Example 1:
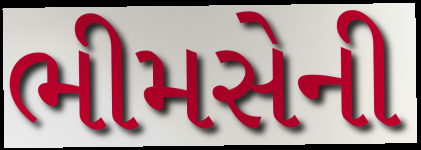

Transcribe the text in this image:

ભીમસેની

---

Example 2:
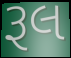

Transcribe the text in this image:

રૂલ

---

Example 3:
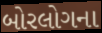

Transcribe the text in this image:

બોરલોગના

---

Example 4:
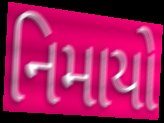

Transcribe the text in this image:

નિમાયો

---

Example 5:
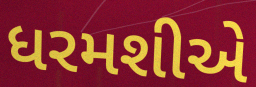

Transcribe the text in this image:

ધરમશીએ